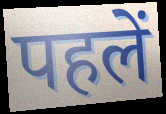
पहलें